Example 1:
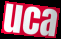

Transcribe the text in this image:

uca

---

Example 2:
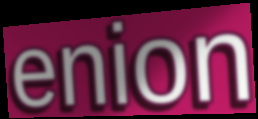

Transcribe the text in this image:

enion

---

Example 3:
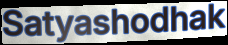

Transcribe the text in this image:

Satyashodhak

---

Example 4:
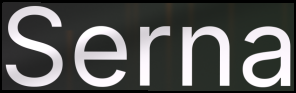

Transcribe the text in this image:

Serna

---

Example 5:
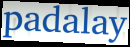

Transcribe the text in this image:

padalay